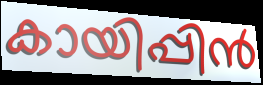
കായിപ്പിൻ